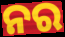
ନର